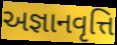
અજ્ઞાનવૃત્તિ